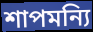
শাপমন্যি